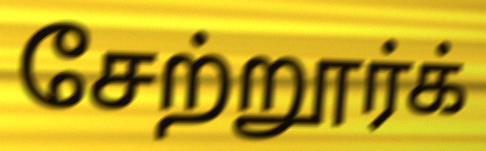
சேற்றூர்க்